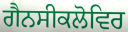
ਗੈਨਸੀਕਲੋਵਿਰ